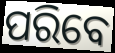
ପରିବେ